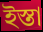
ইস্তা